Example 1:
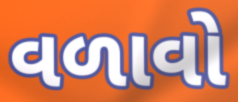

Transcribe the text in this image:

વળાવો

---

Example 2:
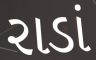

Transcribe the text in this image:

રાડાં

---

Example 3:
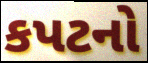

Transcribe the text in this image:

કપટનો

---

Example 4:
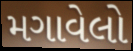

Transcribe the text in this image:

મગાવેલો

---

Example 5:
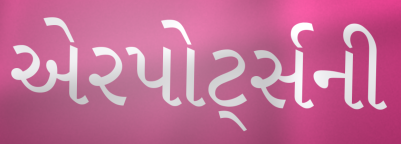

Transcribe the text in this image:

એરપોર્ટ્સની